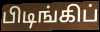
பிடிங்கிப்